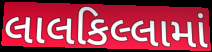
લાલકિલ્લામાં